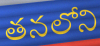
తనలోని